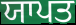
ਯਾਪਤ